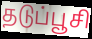
தடுப்பூசி